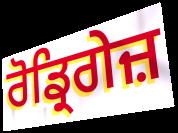
ਰੋਡ੍ਰਿਗੇਜ਼